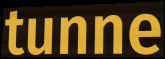
tunne